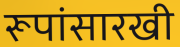
रूपांसारखी